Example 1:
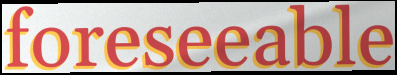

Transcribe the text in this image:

foreseeable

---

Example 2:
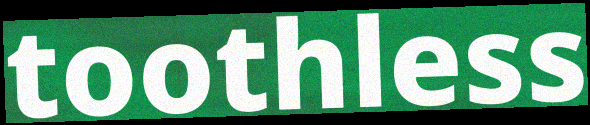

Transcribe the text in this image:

toothless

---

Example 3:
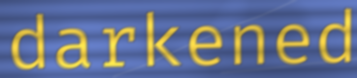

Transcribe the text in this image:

darkened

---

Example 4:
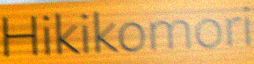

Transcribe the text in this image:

Hikikomori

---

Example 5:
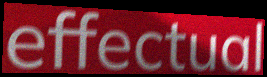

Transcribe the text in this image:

effectual